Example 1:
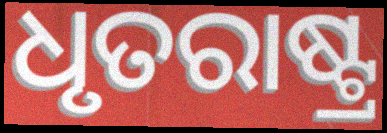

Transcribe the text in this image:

ଧୃତରାଷ୍ଟ୍ର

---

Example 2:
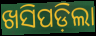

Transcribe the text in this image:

ଖସିପଡ଼ିଲା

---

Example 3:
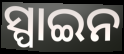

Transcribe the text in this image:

ସ୍ପାଇନ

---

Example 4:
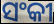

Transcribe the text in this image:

ସଂକୀ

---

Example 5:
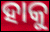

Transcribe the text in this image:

ହାକୁ